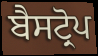
ਬੈਸਟ੍ਰੋਪ